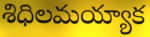
శిధిలమయ్యాక